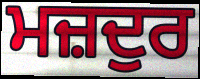
ਮਜ਼ਦੁਰ